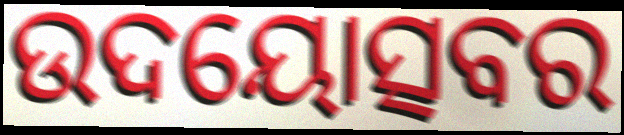
ଉଦୟୋତ୍ସବର